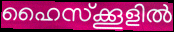
ഹൈസ്ക്കൂളിൽ